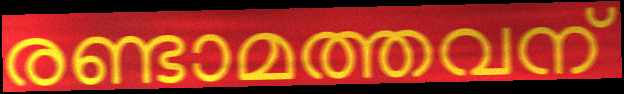
രണ്ടാമത്തവന്